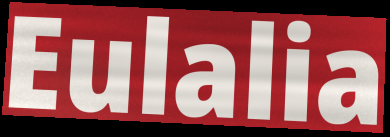
Eulalia